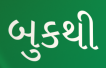
બુકથી